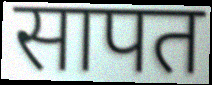
सापत